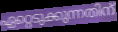
ഏറ്റെടുക്കുന്നതിന്